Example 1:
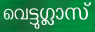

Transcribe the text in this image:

വെട്ടുഗ്ലാസ്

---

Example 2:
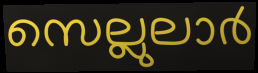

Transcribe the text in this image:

സെല്ലുലാർ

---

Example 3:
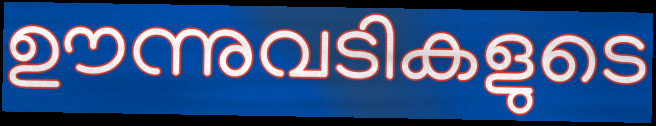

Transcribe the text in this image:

ഊന്നുവടികളുടെ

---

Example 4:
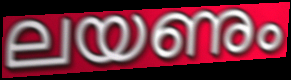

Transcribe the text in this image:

ലയണും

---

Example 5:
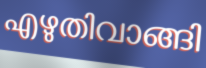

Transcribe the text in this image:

എഴുതിവാങ്ങി